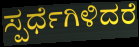
ಸ್ಪರ್ಧೆಗಿಳಿದರೆ